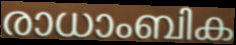
രാധാംബിക